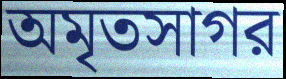
অমৃতসাগর